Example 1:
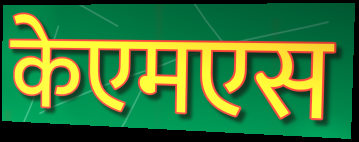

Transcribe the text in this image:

केएमएस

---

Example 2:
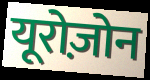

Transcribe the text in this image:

यूरोज़ोन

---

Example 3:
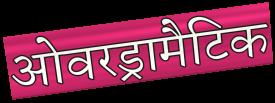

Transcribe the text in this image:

ओवरड्रामैटिक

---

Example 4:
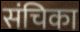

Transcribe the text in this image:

संचिका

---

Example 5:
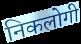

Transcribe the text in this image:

निकलोगी